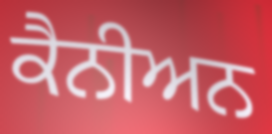
ਕੈਨੀਅਨ